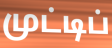
முட்டிப்